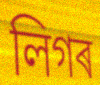
লিগৰ